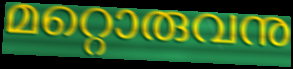
മറ്റൊരുവനു